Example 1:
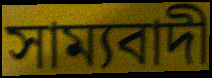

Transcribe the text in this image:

সাম্যবাদী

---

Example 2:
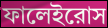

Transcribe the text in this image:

ফালেইরোস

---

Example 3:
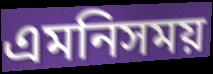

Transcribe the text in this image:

এমনিসময়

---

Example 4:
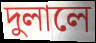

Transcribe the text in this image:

দুলালে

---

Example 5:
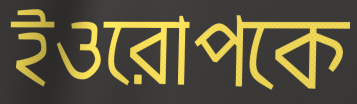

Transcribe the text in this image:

ইওরোপকে